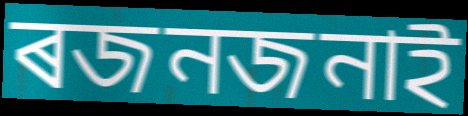
ৰজনজনাই